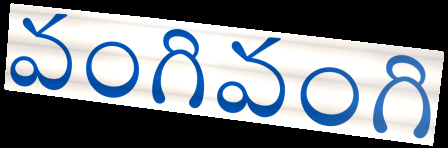
వంగివంగి